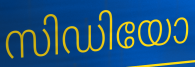
സിഡിയോ